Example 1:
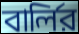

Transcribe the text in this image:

বার্লির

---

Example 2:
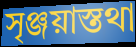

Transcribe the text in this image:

সৃঞ্জয়াস্তথা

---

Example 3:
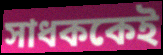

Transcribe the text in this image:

সাধককেই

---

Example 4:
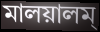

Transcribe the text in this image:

মালয়ালম্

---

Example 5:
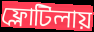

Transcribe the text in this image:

ফ্লোটিলায়